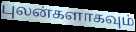
புலன்களாகவும்